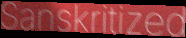
Sanskritized